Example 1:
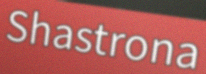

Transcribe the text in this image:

Shastrona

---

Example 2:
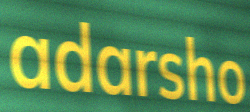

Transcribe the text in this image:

adarsho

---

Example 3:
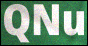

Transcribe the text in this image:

QNu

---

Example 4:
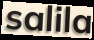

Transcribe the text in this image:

salila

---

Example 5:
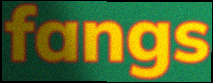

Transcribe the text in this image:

fangs